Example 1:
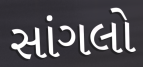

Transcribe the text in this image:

સાંગલો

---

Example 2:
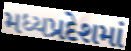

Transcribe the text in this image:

મધ્યપ્રદેશમાં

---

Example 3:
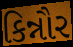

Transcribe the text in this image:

કિન્નૌર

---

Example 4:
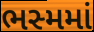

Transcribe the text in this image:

ભસ્મમાં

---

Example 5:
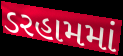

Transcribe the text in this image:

ડરહામમાં